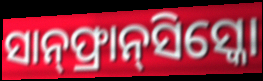
ସାନ୍‌ଫ୍ରାନ୍‌ସିସ୍କୋ